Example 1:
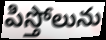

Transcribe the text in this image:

పిస్తోలును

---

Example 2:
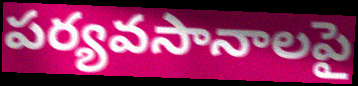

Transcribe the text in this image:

పర్యవసానాలపై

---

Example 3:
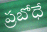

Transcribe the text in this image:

ప్రబోధే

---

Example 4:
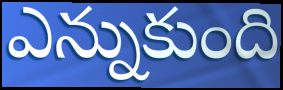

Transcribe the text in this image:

ఎన్నుకుంది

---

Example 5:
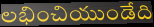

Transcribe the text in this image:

లభించియుండేది